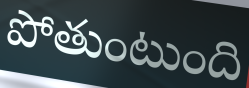
పోతుంటుంది